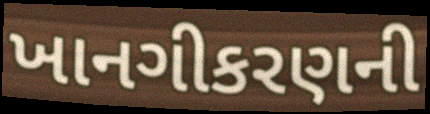
ખાનગીકરણની